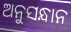
ଅନୁସନ୍ଧାନ